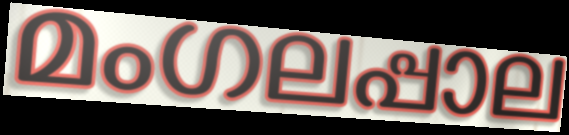
മംഗലപ്പാല